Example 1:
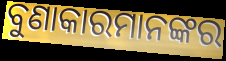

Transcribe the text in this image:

ବୁଣାକାରମାନଙ୍କର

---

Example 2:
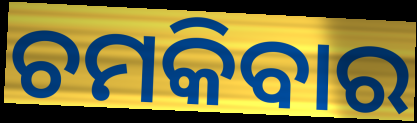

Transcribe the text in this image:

ଚମକିବାର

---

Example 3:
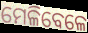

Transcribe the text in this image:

ମେଳିବେଳେ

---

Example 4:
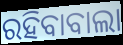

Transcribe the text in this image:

ରହିବାବାଲା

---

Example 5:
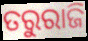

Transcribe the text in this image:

ତରୁରାଜି